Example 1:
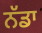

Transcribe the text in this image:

ਨੱਡਾ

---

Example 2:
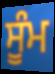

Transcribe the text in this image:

ਸੂੰਮ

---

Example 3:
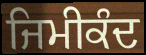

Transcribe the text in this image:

ਜਿਮੀਕੰਦ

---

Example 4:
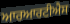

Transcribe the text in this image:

ਆਰਆਰਟੀਐਸ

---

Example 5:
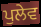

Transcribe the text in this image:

ਪੁਲੇਵ